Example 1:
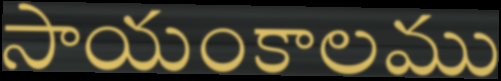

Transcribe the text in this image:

సాయంకాలము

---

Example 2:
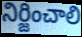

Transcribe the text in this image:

నిర్జించాలి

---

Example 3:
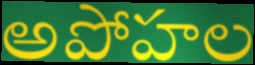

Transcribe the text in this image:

అపోహల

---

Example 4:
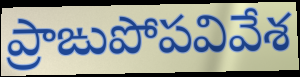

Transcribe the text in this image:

ప్రాఙుపోపవివేశ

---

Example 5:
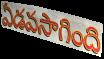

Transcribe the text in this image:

ఏడవసాగింది